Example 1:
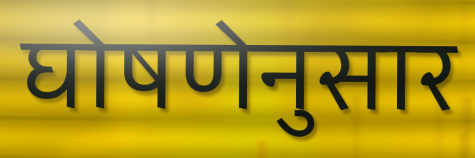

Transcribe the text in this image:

घोषणेनुसार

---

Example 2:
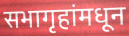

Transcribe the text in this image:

सभागृहांमधून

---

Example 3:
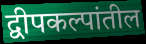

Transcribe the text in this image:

द्वीपकल्पांतील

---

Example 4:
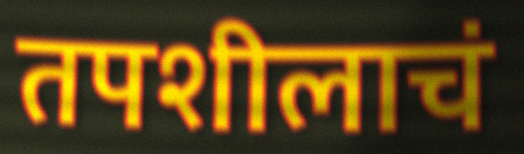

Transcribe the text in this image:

तपशीलाचं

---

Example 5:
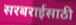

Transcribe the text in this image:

सरबराईसाठी